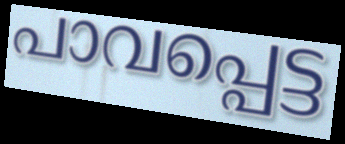
പാവപ്പെട്ട